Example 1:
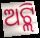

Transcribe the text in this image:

ଅଟ୍ଲି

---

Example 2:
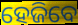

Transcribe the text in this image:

ହେଜିବେ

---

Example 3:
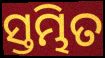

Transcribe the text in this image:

ସ୍ତମ୍ଭିତ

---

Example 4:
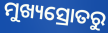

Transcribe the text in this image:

ମୁଖ୍ୟସ୍ରୋତରୁ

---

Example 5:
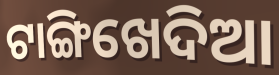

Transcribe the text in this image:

ଟାଙ୍ଗିଖେଦିଆ